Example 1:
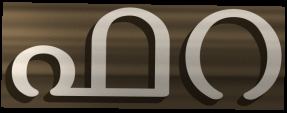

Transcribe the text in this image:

ഫറ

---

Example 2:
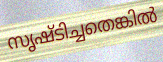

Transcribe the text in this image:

സൃഷ്ടിച്ചതെങ്കിൽ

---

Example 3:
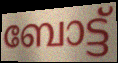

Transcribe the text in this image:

ബോട്ട്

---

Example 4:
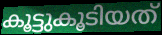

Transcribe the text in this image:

കൂട്ടുകൂടിയത്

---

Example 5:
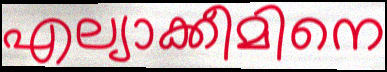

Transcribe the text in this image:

എല്യാക്കീമിനെ